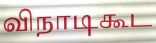
விநாடிகூட